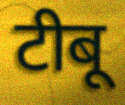
टीबू